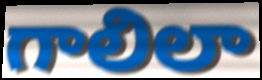
గాలిలా